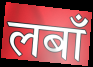
लबाँ